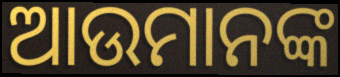
ଆଉମାନଙ୍କ